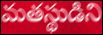
మతస్థుడిని